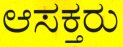
ಆಸಕ್ತರು